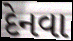
દેનવા